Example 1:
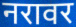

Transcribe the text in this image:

नरावर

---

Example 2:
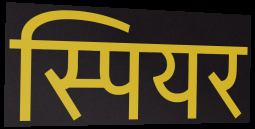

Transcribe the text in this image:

स्पियर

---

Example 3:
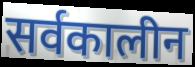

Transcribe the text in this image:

सर्वकालीन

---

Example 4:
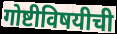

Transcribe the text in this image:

गोष्टीविषयीची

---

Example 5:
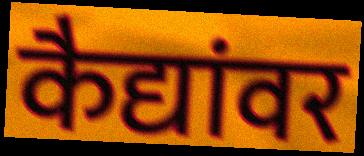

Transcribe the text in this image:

कैद्यांवर